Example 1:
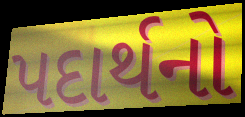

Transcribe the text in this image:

પદાર્થનો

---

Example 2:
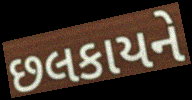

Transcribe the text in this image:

છલકાયને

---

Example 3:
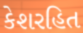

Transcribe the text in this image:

કેશરહિત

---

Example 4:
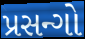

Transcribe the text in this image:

પ્રસન્ગો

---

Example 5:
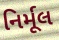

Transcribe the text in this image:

નિર્મૂલ